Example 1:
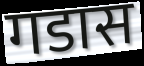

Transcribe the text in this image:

गडास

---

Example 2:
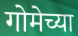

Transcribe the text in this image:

गोमेच्या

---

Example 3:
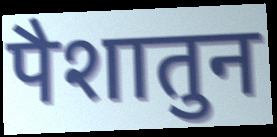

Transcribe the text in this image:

पैशातुन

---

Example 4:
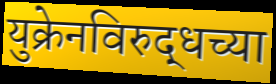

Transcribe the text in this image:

युक्रेनविरुद्धच्या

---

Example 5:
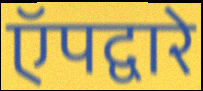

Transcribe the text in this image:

ऍपद्वारे